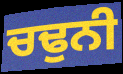
ਚਢੁਨੀ